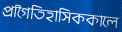
প্রাগৈতিহাসিককালে